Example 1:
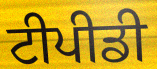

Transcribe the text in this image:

ਟੀਪੀਡੀ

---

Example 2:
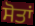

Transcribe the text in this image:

ਸੋਤਾਂ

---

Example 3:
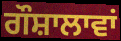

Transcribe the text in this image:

ਗੌਸ਼ਾਲਾਵਾਂ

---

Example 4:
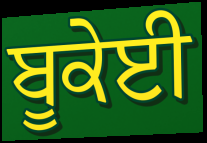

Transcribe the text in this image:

ਬੂਕੇਈ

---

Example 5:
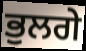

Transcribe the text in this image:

ਭੁਲਗੇ